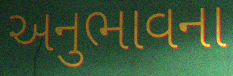
અનુભાવના